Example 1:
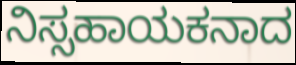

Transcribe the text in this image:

ನಿಸ್ಸಹಾಯಕನಾದ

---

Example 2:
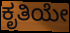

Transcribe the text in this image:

ಕೃತಿಯೇ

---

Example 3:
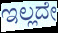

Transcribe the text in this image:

ಇಲ್ಲದೇ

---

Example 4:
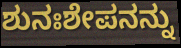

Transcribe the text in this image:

ಶುನಃಶೇಪನನ್ನು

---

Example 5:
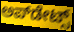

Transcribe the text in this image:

ಅಪ್‌ಡೇಟ್ಸ್